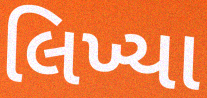
લિખ્યા